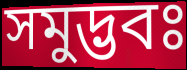
সমুদ্ভবঃ